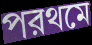
পরথমে